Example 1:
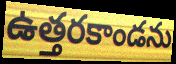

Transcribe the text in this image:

ఉత్తరకాండను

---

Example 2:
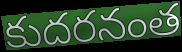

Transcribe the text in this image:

కుదరనంత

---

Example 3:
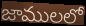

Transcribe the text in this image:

జాములలో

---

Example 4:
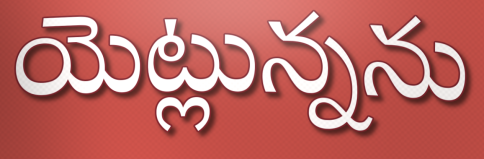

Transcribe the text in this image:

యెట్లున్నను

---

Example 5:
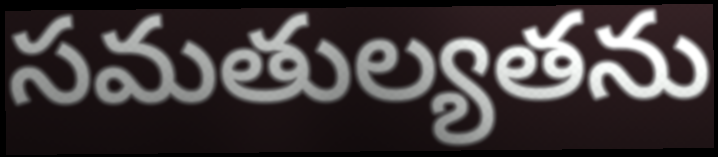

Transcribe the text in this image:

సమతుల్యతను